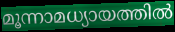
മൂന്നാമധ്യായത്തിൽ